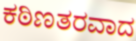
ಕಠಿಣತರವಾದ